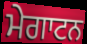
ਮੇਗਾਟਨ